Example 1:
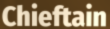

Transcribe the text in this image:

Chieftain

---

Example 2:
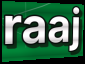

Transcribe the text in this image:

raaj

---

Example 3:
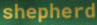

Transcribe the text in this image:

shepherd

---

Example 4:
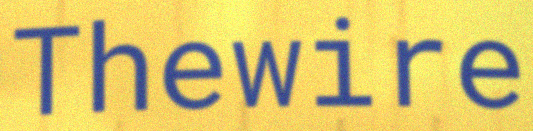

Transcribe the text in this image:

Thewire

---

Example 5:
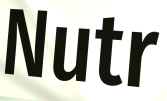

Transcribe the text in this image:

Nutr